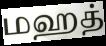
மஹத்